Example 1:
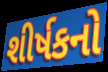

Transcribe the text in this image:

શીર્ષકનો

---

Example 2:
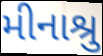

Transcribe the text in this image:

મીનાશ્રુ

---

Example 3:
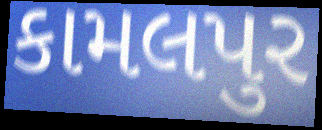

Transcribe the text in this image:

કામલપુર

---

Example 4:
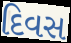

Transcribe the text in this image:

દિવસ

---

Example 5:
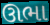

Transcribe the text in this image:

ઊભા